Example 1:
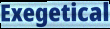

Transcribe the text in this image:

Exegetical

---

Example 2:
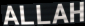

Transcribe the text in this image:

ALLAH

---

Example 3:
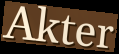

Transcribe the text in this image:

Akter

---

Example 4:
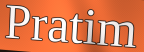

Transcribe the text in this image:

Pratim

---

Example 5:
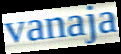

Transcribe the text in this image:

vanaja